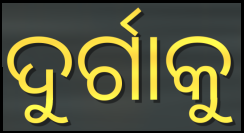
ଦୁର୍ଗାକୁ